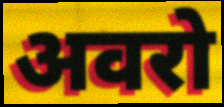
अवरो